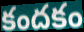
కందకం